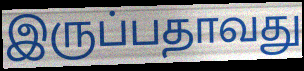
இருப்பதாவது